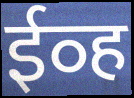
ईव्ह